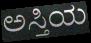
ಅಸ್ತಿಯ